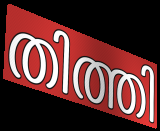
തിത്തി